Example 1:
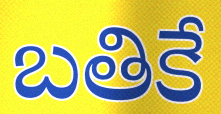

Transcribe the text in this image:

బతికే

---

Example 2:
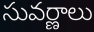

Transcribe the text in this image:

సువర్ణాలు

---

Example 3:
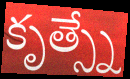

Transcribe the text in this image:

కృత్స్నే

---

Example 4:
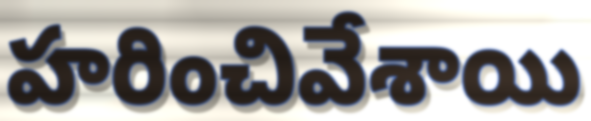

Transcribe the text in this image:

హరించివేశాయి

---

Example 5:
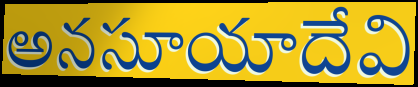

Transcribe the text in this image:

అనసూయాదేవి